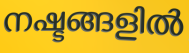
നഷ്ടങ്ങളിൽ